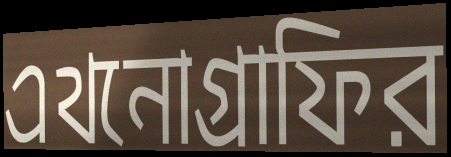
এথনোগ্রাফির